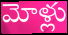
మోళ్లు